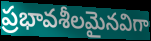
ప్రభావశీలమైనవిగా